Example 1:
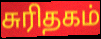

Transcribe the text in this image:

சுரிதகம்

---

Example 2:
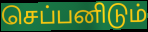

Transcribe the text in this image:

செப்பனிடும்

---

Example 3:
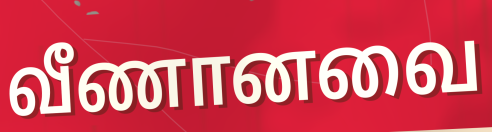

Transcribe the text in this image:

வீணானவை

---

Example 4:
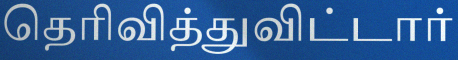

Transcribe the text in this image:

தெரிவித்துவிட்டார்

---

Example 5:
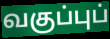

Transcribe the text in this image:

வகுப்புப்